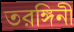
তরঙ্গিনী